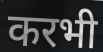
करभी